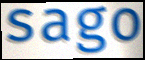
sago